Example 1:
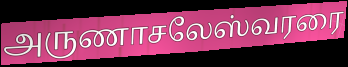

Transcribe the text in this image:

அருணாசலேஸ்வரரை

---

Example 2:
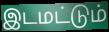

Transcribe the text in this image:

இடமட்டும்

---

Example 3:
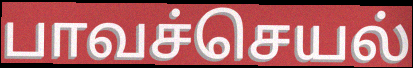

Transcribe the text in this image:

பாவச்செயல்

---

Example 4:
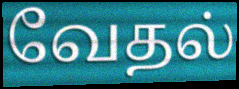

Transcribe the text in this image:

வேதல்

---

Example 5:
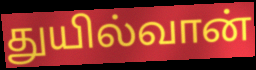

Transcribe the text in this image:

துயில்வான்